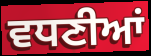
ਵਧਣੀਆਂ